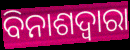
ବିନାଶଦ୍ଵାରା